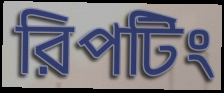
রিপটিং